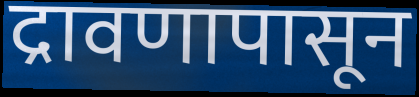
द्रावणापासून